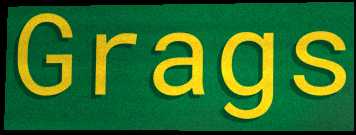
Grags